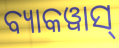
ବ୍ୟାକୱାସ୍